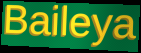
Baileya